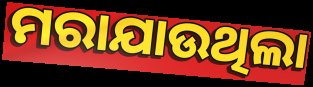
ମରାଯାଉଥିଲା